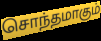
சொந்தமாகும்